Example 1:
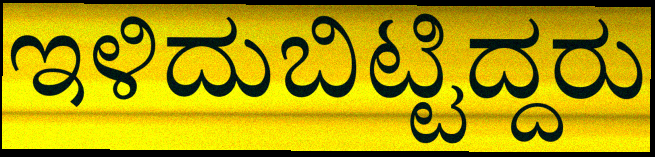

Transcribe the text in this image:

ಇಳಿದುಬಿಟ್ಟಿದ್ದರು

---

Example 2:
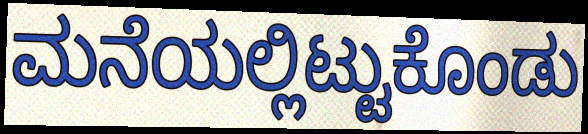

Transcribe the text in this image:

ಮನೆಯಲ್ಲಿಟ್ಟುಕೊಂಡು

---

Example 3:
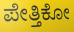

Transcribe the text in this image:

ಪೇತ್ತಿಕೋ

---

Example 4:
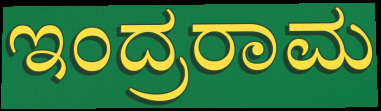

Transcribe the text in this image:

ಇಂದ್ರರಾಮ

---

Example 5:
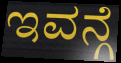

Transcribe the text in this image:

ಇವನ್ಗೆ